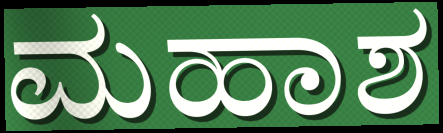
ಮಹಾಶ